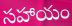
సహాయం